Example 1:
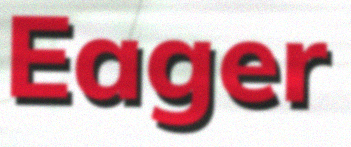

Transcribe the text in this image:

Eager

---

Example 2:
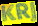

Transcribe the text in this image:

KRJ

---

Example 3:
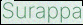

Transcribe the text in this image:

Surappa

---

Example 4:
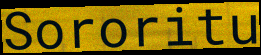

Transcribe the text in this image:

Sororitu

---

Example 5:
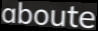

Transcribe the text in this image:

aboute